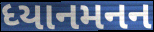
ધ્યાનમનન